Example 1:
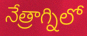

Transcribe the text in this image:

నేత్రాగ్నిలో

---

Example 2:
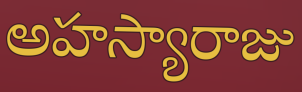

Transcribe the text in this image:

అహస్యారాజు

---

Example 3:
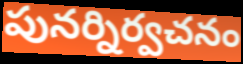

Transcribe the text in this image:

పునర్నిర్వచనం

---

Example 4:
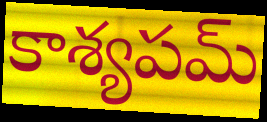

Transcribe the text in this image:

కాశ్యపమ్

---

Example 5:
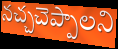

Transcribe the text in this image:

నచ్చచెప్పాలని